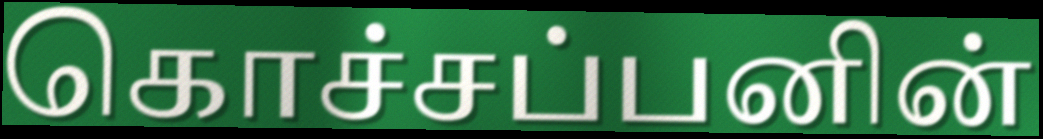
கொச்சப்பனின்